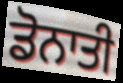
ਡੋਨਾਤੀ